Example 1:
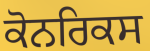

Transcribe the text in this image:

ਕੋਨਰਿਕਸ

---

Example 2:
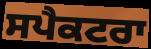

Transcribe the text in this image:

ਸਪੈਕਟਰਾ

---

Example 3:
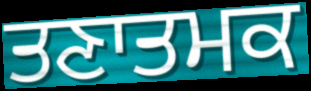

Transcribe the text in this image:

ਤਣਾਤਮਕ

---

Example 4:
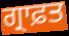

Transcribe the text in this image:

ਗ੍ਰਾਫ਼ਤ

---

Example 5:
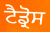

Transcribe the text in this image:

ਟੈਡ੍ਰੋਸ